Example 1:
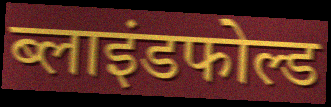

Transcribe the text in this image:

ब्लाइंडफोल्ड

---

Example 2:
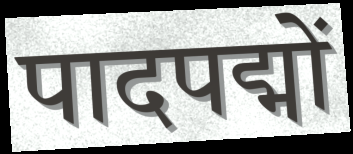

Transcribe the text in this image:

पादपद्मों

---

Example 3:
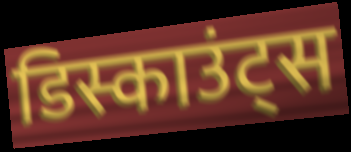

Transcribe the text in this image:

डिस्काउंट्स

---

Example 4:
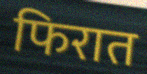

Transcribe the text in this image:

फिरात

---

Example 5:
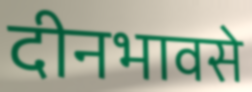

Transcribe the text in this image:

दीनभावसे